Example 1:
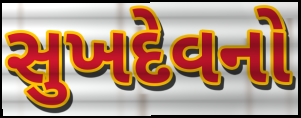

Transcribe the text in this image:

સુખદેવનો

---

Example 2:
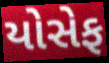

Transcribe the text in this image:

યોસેફ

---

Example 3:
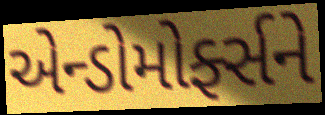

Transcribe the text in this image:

એન્ડોમોર્ફ્સને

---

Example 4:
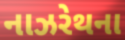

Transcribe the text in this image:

નાઝરેથના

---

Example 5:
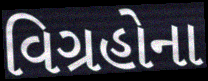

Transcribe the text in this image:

વિગ્રહોના